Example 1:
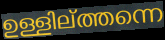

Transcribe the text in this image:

ഉള്ളില്ത്തന്നെ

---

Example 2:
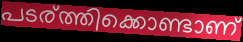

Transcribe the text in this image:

പടര്ത്തിക്കൊണ്ടാണ്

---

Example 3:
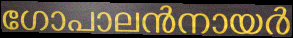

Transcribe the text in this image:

ഗോപാലൻനായർ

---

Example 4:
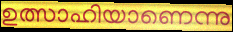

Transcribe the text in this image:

ഉത്സാഹിയാണെന്നു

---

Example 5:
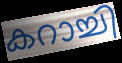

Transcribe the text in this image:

കറാച്ചി